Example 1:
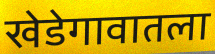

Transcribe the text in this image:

खेडेगावातला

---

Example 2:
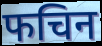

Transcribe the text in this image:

फचिन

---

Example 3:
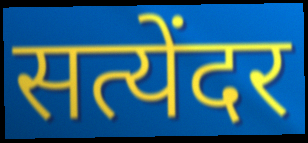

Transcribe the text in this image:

सत्येंदर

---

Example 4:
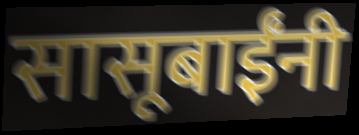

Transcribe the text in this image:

सासूबाईंनी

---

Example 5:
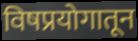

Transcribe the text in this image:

विषप्रयोगातून